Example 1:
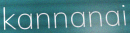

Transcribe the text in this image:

kannanai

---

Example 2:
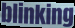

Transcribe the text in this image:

blinking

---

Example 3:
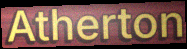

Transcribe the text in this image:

Atherton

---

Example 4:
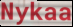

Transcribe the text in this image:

Nykaa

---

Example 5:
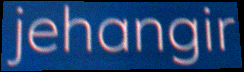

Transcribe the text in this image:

jehangir